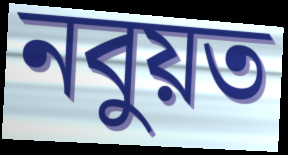
নবুয়ত